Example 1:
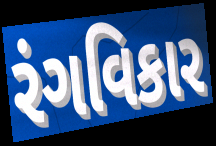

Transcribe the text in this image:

રંગવિકાર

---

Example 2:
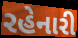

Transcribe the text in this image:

રહેનારી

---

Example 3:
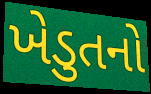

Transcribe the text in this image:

ખેડુતનો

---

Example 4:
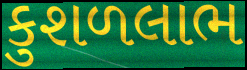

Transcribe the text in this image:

કુશળલાભ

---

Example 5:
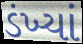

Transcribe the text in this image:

ડંખ્યાં